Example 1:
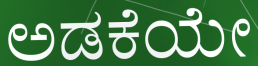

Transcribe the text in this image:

ಅಡಕೆಯೇ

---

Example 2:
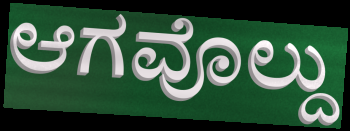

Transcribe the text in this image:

ಆಗವೊಲ್ದು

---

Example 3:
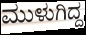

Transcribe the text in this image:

ಮುಳುಗಿದ್ದ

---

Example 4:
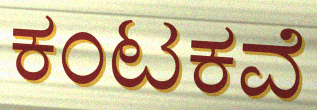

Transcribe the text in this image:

ಕಂಟಕವೆ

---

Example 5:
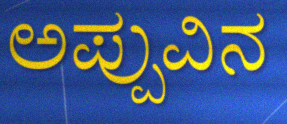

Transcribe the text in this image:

ಅಪ್ಪುವಿನ